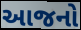
આજનો